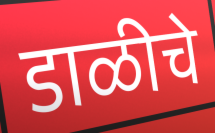
डाळीचे